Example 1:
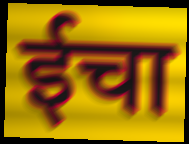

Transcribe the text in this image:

ईचा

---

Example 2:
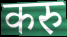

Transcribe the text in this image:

करु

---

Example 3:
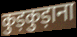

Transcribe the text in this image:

कुड़कुड़ाना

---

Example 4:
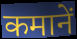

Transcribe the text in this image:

कमानें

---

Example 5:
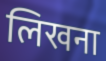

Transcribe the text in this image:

लिखना